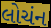
લોચંન